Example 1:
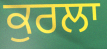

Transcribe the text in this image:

ਕੁਰਲਾ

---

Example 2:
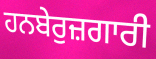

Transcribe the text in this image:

ਹਨਬੇਰੁਜ਼ਗਾਰੀ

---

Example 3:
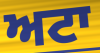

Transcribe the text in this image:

ਅਟਾ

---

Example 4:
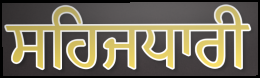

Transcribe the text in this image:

ਸਹਿਜਧਾਰੀ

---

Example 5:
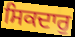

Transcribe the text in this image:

ਸਿਕਦਾਰੁ